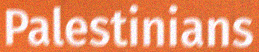
Palestinians